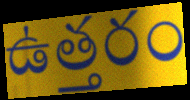
ఉత్తరం